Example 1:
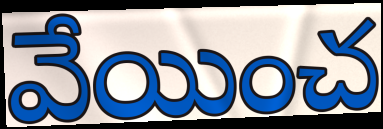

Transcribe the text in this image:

వేయించ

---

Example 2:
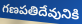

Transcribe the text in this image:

గణపతిదేవునికి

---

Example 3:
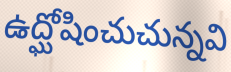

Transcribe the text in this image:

ఉద్ఘోషించుచున్నవి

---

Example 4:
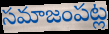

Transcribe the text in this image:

సమాజంపట్ల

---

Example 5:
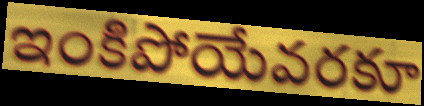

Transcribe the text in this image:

ఇంకిపోయేవరకూ